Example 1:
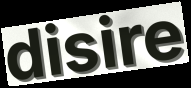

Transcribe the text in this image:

disire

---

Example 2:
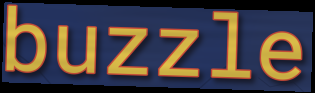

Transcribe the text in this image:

buzzle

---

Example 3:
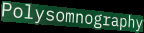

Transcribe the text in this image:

Polysomnography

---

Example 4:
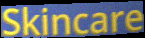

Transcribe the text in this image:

Skincare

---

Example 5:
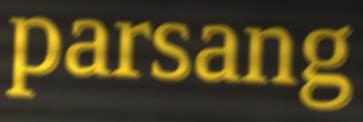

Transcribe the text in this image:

parsang